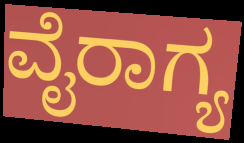
ವೈರಾಗ್ಯ